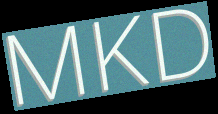
MKD